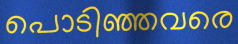
പൊടിഞ്ഞവരെ